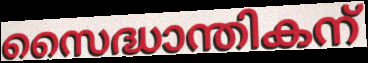
സൈദ്ധാന്തികന്